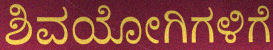
ಶಿವಯೋಗಿಗಳಿಗೆ